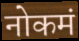
नोकमं